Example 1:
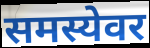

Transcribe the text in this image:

समस्येवर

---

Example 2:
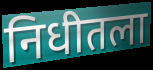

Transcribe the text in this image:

निधीतला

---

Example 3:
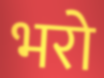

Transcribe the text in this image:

भरो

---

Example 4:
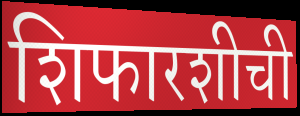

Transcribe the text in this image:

शिफारशीची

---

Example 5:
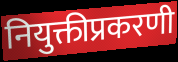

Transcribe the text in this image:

नियुक्तीप्रकरणी